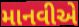
માનવીએ